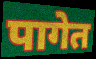
पागेत